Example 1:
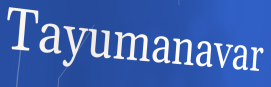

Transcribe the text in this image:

Tayumanavar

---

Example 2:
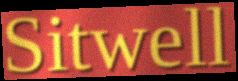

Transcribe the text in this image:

Sitwell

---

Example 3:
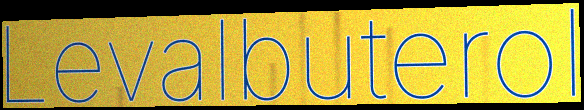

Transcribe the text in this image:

Levalbuterol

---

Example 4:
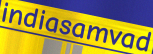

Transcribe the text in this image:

indiasamvad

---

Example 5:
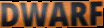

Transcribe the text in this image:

DWARF